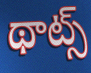
థాట్స్